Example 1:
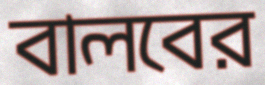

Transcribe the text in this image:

বালবের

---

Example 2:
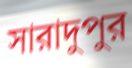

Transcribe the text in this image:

সারাদুপুর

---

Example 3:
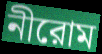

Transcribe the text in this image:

নীরোম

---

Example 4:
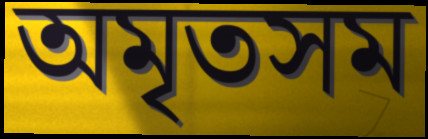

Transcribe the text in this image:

অমৃতসম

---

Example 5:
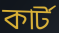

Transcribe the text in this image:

কার্ট